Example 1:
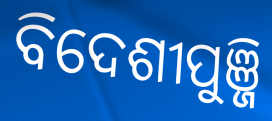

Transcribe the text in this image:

ବିଦେଶୀପୁଞ୍ଜି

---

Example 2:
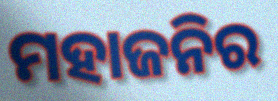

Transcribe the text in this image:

ମହାଜନିର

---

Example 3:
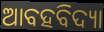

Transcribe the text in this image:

ଆବହବିଦ୍ୟା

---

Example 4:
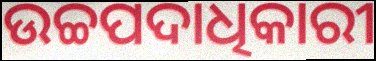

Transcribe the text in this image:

ଉଚ୍ଚପଦାଧିକାରୀ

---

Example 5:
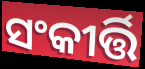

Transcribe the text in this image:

ସଂକୀର୍ତ୍ତି